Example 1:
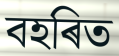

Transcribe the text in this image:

বহৰিত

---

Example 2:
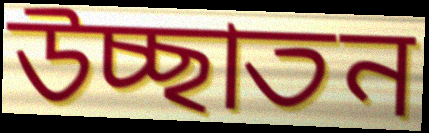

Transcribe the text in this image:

উচ্ছাতন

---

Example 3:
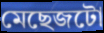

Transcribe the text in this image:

মেছেজটো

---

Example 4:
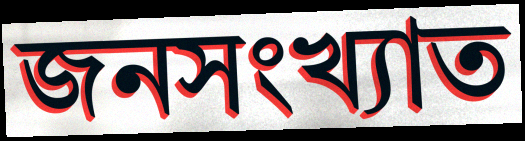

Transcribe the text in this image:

জনসংখ্যাত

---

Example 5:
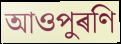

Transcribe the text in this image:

আওপুৰণি